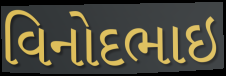
વિનોદભાઇ